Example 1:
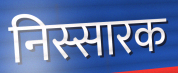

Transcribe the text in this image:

निस्सारक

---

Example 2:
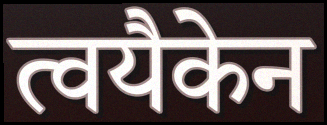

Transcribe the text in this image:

त्वयैकेन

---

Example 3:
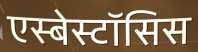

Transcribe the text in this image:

एस्बेस्टॉसिस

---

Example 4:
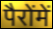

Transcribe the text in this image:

पैरोंमें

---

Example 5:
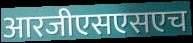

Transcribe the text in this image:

आरजीएसएसएच